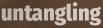
untangling